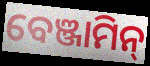
ବେଞ୍ଜାମିନ୍